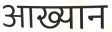
आख्यान